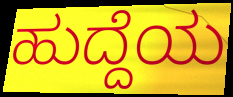
ಹುದ್ದೆಯ